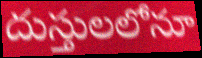
దుస్తులలోనూ